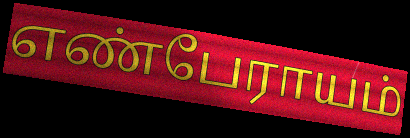
எண்பேராயம்